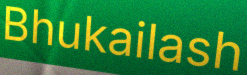
Bhukailash